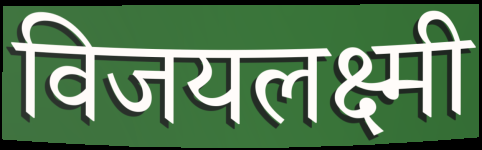
विजयलक्ष्मी